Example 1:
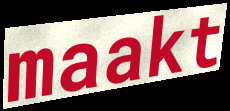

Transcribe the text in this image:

maakt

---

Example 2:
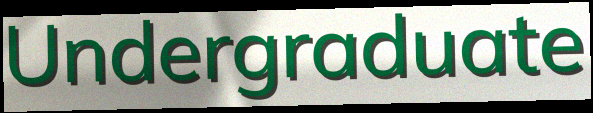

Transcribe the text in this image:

Undergraduate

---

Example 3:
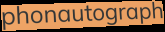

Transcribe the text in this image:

phonautograph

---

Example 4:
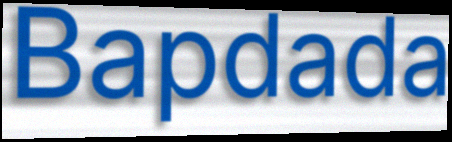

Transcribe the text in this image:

Bapdada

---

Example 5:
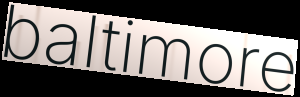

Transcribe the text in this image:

baltimore